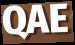
QAE